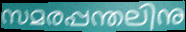
സമരപ്പന്തലിനു